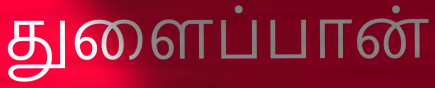
துளைப்பான்